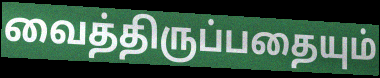
வைத்திருப்பதையும்